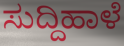
ಸುದ್ದಿಹಾಳೆ